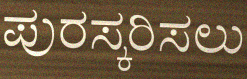
ಪುರಸ್ಕರಿಸಲು